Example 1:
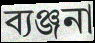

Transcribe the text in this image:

ব্যঞ্জনা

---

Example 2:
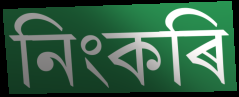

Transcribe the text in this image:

নিংকৰি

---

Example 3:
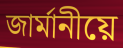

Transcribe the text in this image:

জাৰ্মানীয়ে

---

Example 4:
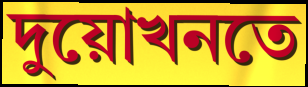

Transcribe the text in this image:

দুয়োখনতে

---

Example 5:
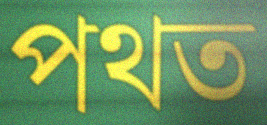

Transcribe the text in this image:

পথত